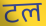
टल